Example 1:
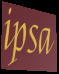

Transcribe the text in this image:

ipsa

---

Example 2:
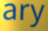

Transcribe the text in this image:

ary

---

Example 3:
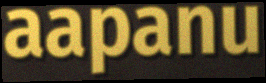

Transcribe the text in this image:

aapanu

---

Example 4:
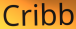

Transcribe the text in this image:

Cribb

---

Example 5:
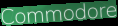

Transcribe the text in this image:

Commodore